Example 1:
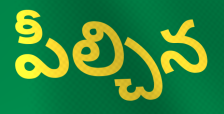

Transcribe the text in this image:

పీల్చిన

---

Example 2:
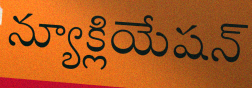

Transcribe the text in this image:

న్యూక్లియేషన్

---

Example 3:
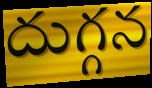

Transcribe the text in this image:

దుగ్గన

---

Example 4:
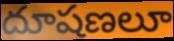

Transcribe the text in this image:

దూషణలూ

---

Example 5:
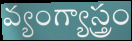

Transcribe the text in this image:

వ్యంగ్యాస్త్రం